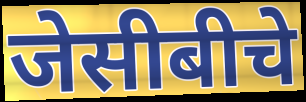
जेसीबीचे